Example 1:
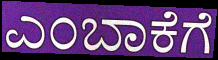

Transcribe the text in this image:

ಎಂಬಾಕೆಗೆ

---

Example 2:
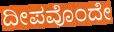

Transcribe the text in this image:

ದೀಪವೊಂದೇ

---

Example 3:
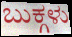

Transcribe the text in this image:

ಬುಕ್ಗಳು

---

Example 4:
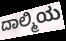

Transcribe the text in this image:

ದಾಲ್ಮಿಯ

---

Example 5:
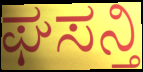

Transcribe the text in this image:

ಘಸನ್ತಿ